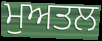
ਮੁਅਤਲ